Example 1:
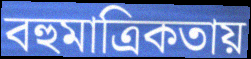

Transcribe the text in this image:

বহুমাত্রিকতায়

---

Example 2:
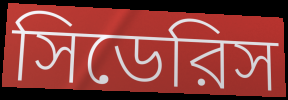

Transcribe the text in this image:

সিডেরিস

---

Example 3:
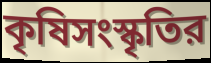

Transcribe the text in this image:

কৃষিসংস্কৃতির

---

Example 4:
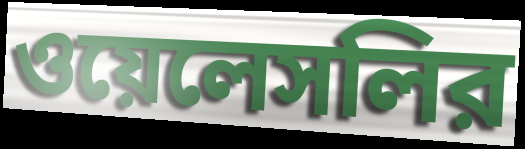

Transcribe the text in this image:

ওয়েলেসলির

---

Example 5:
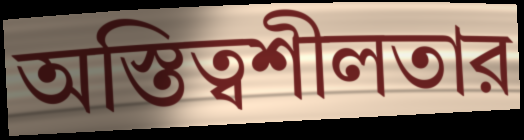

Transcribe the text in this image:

অস্তিত্বশীলতার